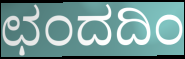
ಛಂದದಿಂ